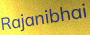
Rajanibhai